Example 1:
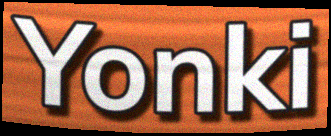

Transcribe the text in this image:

Yonki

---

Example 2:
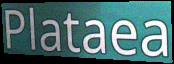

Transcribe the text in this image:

Plataea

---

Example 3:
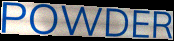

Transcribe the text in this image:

POWDER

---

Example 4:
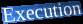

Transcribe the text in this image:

Execution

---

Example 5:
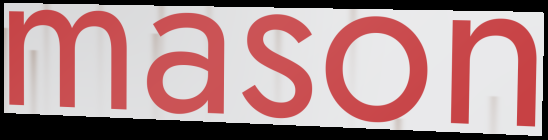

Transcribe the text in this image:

mason